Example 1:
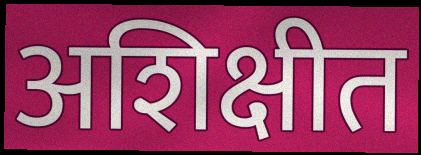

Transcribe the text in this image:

अशिक्षीत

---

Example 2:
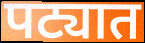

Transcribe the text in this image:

पट्यात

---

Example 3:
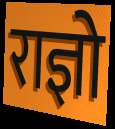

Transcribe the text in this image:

राज्ञो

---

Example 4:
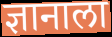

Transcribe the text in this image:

ज्ञानाला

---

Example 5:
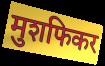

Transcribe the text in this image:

मुशफिकर